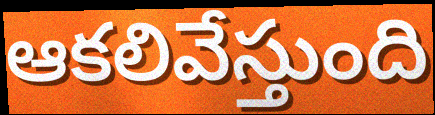
ఆకలివేస్తుంది